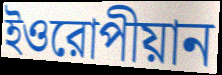
ইওরোপীয়ান